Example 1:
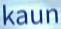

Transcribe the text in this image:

kaun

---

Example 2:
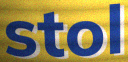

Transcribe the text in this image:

stol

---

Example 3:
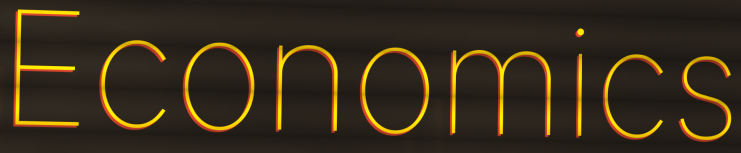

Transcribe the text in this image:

Economics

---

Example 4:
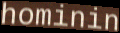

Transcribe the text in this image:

hominin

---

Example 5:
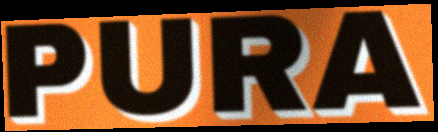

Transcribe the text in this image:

PURA